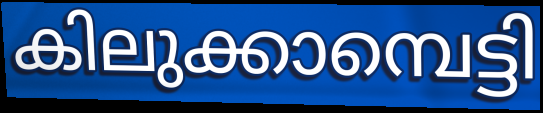
കിലുക്കാമ്പെട്ടി